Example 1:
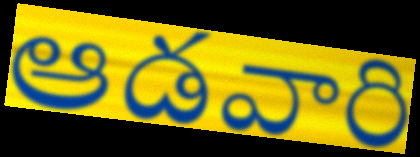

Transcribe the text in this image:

ఆడవారి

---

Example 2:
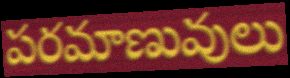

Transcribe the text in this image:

పరమాణువులు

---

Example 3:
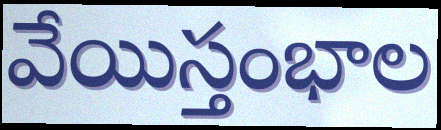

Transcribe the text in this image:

వేయిస్తంభాల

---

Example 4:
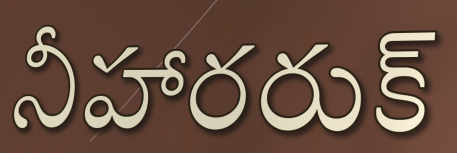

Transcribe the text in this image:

నీహారరుక్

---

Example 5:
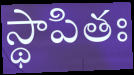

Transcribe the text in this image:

స్థాపితః